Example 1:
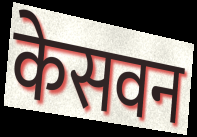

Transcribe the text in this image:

केसवन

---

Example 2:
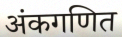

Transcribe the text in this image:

अंकगणित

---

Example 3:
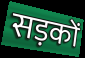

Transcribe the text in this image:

सड़कों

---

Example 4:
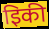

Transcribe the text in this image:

इिकी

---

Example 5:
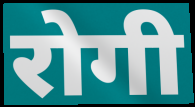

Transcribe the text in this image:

रोगी